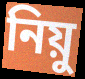
নিয়ু